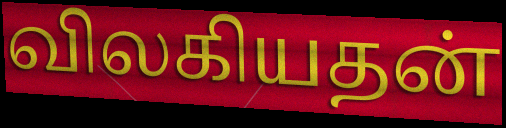
விலகியதன்